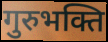
गुरुभक्ति